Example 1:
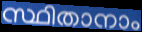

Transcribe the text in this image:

സ്ഥിതാനാം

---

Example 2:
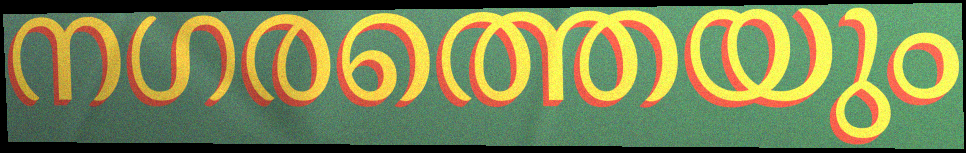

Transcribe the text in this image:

നഗരത്തെയും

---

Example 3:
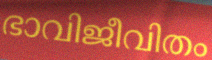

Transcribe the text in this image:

ഭാവിജീവിതം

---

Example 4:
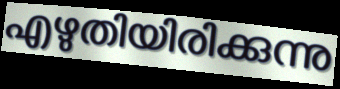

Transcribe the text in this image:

എഴുതിയിരിക്കുന്നു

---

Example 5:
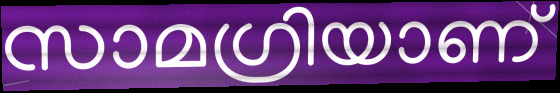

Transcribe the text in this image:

സാമഗ്രിയാണ്